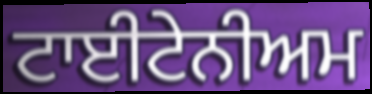
ਟਾਈਟੇਨੀਅਮ